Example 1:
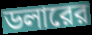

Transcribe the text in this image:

ডলারের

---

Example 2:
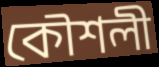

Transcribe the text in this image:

কৌশলী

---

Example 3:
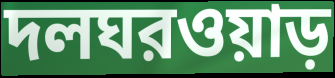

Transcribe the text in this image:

দলঘরওয়াড়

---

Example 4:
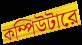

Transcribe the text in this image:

কম্পিউটারে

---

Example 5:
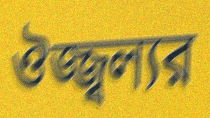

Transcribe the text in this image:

ঔজ্জ্বল্যর